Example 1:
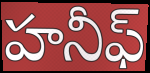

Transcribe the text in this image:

హనీఫ్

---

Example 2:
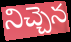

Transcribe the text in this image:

నిచ్చెన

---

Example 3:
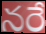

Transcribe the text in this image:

నరే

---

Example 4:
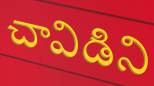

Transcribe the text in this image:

చావిడిని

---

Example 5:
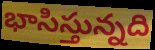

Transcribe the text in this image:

భాసిస్తున్నది